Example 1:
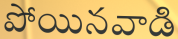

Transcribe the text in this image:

పోయినవాడి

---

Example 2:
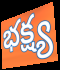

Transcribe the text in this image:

భక్ష్య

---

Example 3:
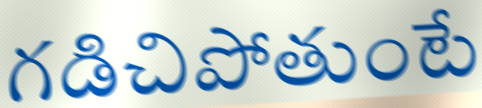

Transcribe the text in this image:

గడిచిపోతుంటే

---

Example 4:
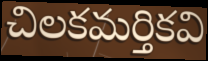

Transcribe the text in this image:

చిలకమర్తికవి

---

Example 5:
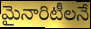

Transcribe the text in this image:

మైనారిటీలనే